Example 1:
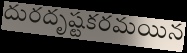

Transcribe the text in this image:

దురదృష్టకరమయిన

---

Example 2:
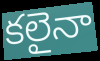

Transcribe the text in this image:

కలైనా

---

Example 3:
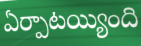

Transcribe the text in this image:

ఏర్పాటయ్యింది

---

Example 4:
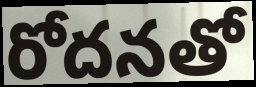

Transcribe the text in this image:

రోదనతో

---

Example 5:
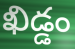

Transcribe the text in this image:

ఖిడ్డం